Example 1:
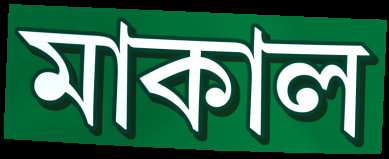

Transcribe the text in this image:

মাকাল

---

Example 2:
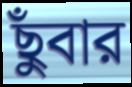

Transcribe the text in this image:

ছুঁবার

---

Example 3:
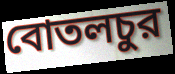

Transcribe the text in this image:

বোতলচুর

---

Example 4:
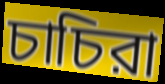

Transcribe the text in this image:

চাচিরা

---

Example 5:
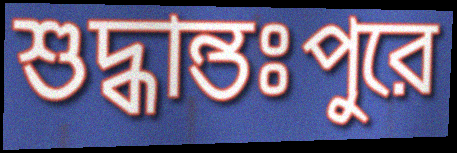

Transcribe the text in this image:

শুদ্ধান্তঃপুরে